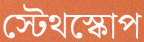
স্টেথস্কোপ